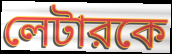
লেটারকে